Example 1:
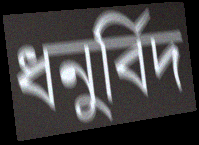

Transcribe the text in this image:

ধনুৰ্বিদ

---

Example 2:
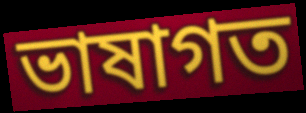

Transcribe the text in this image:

ভাষাগত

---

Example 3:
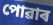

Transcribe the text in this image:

পোৱাৰ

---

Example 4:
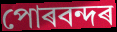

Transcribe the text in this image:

পোৰবন্দৰ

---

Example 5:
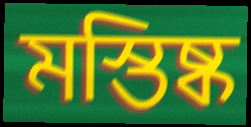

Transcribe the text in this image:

মস্তিষ্ক